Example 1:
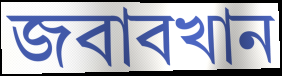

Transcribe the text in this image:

জবাবখান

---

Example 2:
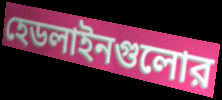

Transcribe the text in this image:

হেডলাইনগুলোর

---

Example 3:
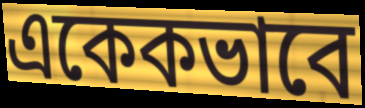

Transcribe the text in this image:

একেকভাবে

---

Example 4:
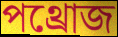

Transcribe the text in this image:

পথ্রোজ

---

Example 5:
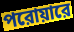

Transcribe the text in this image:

পরোয়ারে